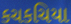
કચકચિયા